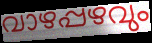
വാഴപ്പഴവും